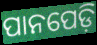
ପାନପେଡ଼ି